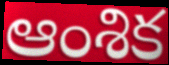
ఆంశిక